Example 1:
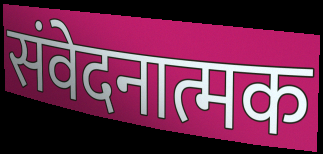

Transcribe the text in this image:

संवेदनात्मक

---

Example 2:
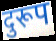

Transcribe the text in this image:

दुरूप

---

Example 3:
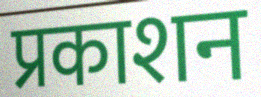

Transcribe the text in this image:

प्रकाशन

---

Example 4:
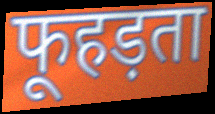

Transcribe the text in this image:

फूहड़ता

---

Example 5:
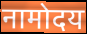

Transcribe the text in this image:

नामोदय